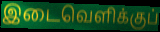
இடைவெளிக்குப்